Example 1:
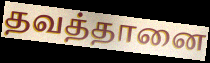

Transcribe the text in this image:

தவத்தானை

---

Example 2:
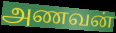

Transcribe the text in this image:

அணவன்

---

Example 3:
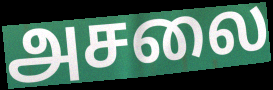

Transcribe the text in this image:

அசலை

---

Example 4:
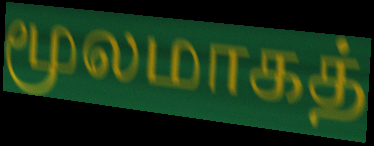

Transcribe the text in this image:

மூலமாகத்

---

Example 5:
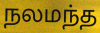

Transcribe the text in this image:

நலமந்த